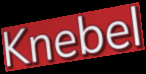
Knebel